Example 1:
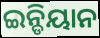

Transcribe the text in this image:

ଇନ୍ଡିୟାନ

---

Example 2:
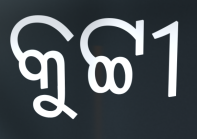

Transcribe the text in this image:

କୁଟ୍ଟୀ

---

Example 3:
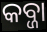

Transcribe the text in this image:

କବ୍ଜା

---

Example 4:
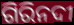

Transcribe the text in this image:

ଗିରିନଦୀ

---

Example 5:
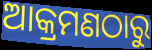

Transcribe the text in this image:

ଆକ୍ରମଣଠାରୁ